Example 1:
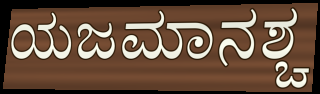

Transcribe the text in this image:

ಯಜಮಾನಶ್ಚ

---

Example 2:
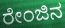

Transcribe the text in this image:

ರೇಂಜಿನ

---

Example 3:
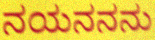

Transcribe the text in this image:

ನಯನನನು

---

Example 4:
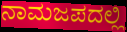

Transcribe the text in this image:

ನಾಮಜಪದಲ್ಲಿ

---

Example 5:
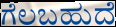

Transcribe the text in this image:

ಗೆಲಬಹುದೆ